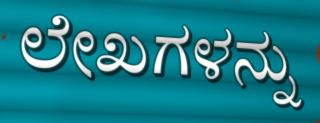
ಲೇಖಗಳನ್ನು